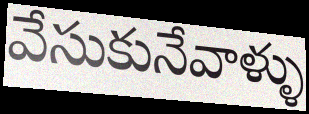
వేసుకునేవాళ్ళు